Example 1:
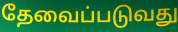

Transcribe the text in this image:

தேவைப்படுவது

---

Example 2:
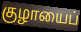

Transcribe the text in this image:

குழாயைப்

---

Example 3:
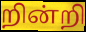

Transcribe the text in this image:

றின்றி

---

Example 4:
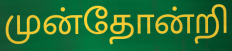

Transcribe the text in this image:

முன்தோன்றி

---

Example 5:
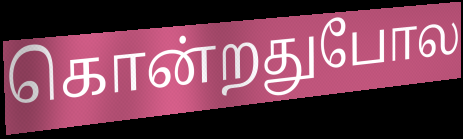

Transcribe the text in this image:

கொன்றதுபோல